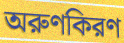
অরুণকিরণ